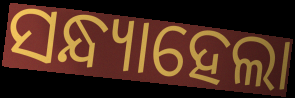
ସନ୍ଧ୍ୟାହେଲା